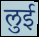
लुई